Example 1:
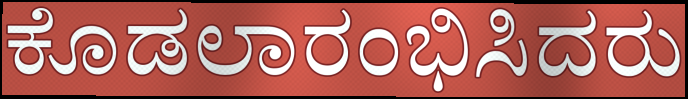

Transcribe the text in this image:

ಕೊಡಲಾರಂಭಿಸಿದರು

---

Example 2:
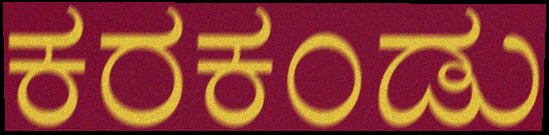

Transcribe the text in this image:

ಕರಕಂಡು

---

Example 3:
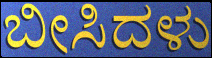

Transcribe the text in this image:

ಬೀಸಿದಳು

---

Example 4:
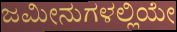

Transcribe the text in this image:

ಜಮೀನುಗಳಲ್ಲಿಯೇ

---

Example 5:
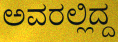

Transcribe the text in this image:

ಅವರಲ್ಲಿದ್ದ